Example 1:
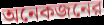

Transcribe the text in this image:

অনেকজনের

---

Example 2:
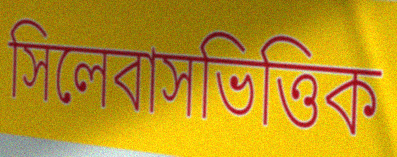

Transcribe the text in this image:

সিলেবাসভিত্তিক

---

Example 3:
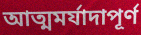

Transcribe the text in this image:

আত্মমর্যাদাপূর্ণ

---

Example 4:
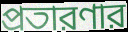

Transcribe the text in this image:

প্রতারণার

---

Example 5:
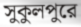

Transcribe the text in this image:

সুকুলপুরে